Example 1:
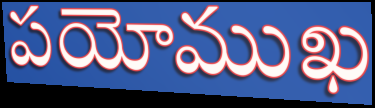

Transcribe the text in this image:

పయోముఖ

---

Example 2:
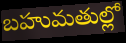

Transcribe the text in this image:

బహుమతుల్లో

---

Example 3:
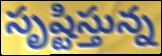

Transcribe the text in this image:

సృష్టిస్తున్న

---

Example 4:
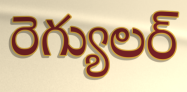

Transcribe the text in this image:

రెగ్యులర్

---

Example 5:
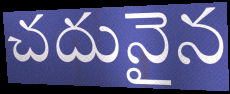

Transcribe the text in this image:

చదునైన